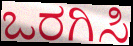
ಒರಗಿಸಿ